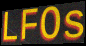
LFOs